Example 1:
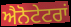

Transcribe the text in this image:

ਐਨੋਟੇਟਰਾਂ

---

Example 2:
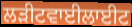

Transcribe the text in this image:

ਲੜੀਟਵਾਈਲਾਈਟ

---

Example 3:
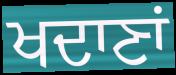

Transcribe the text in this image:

ਖਦਾਣਾਂ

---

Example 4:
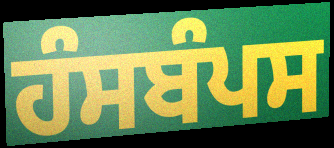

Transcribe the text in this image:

ਹੰਸਬੰਪਸ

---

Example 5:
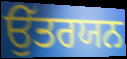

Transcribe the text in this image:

ਉੱਤਰਯਨ